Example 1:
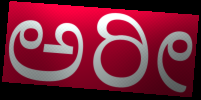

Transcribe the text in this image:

ಅರೀ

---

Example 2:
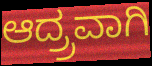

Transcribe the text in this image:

ಆದ್ರ್ರವಾಗಿ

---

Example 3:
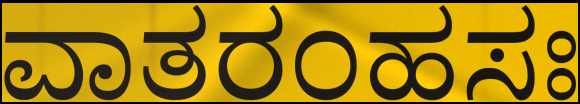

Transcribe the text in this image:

ವಾತರಂಹಸಃ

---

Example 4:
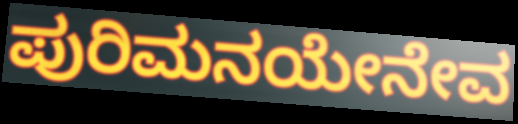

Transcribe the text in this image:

ಪುರಿಮನಯೇನೇವ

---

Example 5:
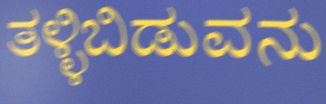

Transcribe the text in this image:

ತಳ್ಳಿಬಿಡುವನು